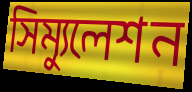
সিম্যুলেশন